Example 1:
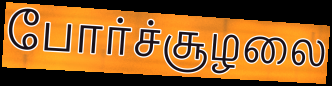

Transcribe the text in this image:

போர்ச்சூழலை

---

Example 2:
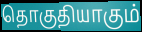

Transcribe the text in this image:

தொகுதியாகும்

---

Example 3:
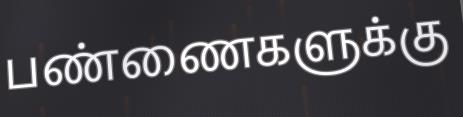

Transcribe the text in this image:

பண்ணைகளுக்கு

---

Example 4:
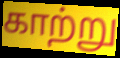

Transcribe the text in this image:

காற்று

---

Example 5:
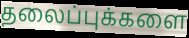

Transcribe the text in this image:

தலைப்புக்களை